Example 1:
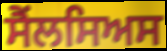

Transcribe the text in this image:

ਸੈਂਲਸਿਅਸ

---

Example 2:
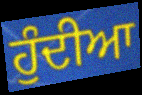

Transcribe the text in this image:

ਹੁੰਦੀਆ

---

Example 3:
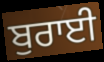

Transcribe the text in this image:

ਬੁਰਾਈ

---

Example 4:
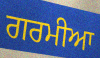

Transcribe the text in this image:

ਗਰਮੀਆ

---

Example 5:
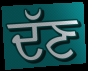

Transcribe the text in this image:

ਦੱਣ